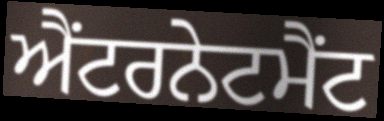
ਐਂਟਰਨੇਟਮੈਂਟ